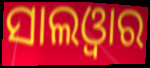
ସାଲଓ୍ଵାର